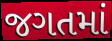
જગતમાં